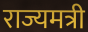
राज्यमत्री